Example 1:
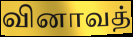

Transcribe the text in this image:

வினாவத்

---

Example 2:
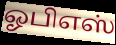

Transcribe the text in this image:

ஓபிஎஸ்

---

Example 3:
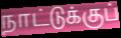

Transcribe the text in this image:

நாட்டுக்குப்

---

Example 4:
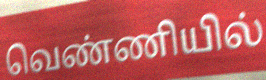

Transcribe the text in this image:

வெண்ணியில்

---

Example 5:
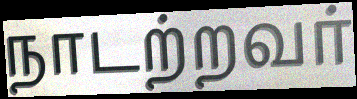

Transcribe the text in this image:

நாடற்றவர்